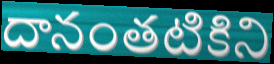
దానంతటికిని